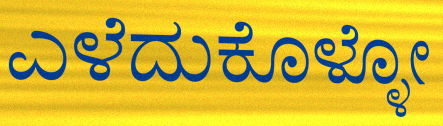
ಎಳೆದುಕೊಳ್ಳೋ